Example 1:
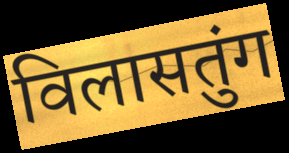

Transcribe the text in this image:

विलासतुंग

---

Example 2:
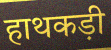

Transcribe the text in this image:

हाथकड़ी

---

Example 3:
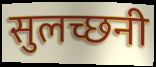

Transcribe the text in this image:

सुलच्छनी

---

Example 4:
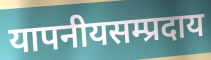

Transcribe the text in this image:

यापनीयसम्प्रदाय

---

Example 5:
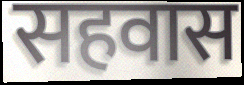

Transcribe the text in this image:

सहवास